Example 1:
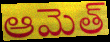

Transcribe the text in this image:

ఆమెత్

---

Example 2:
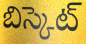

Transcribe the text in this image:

బిస్కెట్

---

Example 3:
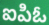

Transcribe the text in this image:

ఐపిఓ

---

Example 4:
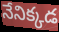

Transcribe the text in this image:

నేనిక్కడ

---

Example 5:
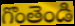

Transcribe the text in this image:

గొంతెండి